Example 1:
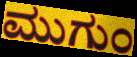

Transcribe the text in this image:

ಮುಗುಂ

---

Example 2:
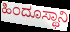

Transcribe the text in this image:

ಹಿಂದೂಸ್ಥಾನಿ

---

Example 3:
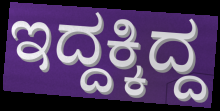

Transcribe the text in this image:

ಇದ್ದಕ್ಕಿದ್ದ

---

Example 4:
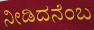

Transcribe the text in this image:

ನೀಡಿದನೆಂಬ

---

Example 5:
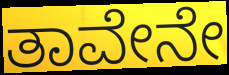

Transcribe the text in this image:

ತಾವೇನೇ